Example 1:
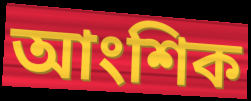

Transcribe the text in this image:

আংশিক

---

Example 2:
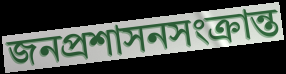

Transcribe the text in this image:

জনপ্রশাসনসংক্রান্ত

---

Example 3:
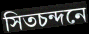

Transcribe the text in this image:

সিতচন্দনে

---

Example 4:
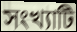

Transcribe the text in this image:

সংখ্যাটি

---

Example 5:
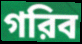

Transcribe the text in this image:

গরিব